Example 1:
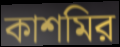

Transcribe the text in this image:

কাশমির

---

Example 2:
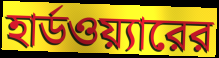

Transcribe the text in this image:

হার্ডওয়্যারের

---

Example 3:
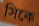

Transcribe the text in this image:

সিকে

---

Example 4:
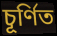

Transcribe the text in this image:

চূর্ণিত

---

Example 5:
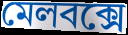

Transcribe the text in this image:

মেলবক্সে